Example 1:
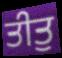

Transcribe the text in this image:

ਤੀਤੁ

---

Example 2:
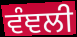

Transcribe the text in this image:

ਵੰਞਲੀ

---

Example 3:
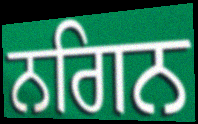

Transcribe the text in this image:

ਨਗਿਨ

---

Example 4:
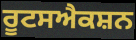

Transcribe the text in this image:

ਰੂਟਸਐਕਸ਼ਨ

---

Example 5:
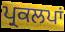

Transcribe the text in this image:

ਪ੍ਰਕਲਪਾਂ